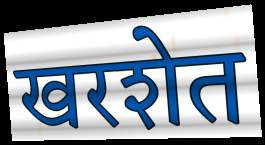
खरशेत